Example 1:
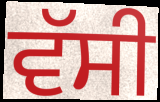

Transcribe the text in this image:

ਵੱਸੀ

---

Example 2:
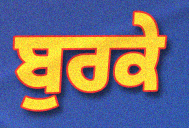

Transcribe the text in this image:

ਬੁਰਕੇ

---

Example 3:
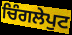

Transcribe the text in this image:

ਚਿੰਗਲੇਪੁਟ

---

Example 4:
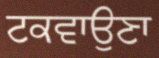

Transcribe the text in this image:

ਟਕਵਾਉਣਾ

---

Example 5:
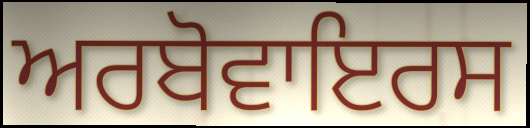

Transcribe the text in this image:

ਅਰਬੋਵਾਇਰਸ